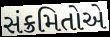
સંક્રમિતોએ